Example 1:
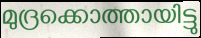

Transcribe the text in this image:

മുദ്രക്കൊത്തായിട്ടു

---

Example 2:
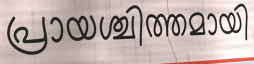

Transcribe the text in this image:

പ്രായശ്ചിത്തമായി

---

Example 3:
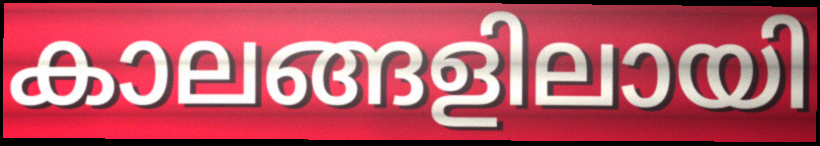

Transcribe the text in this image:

കാലങ്ങളിലായി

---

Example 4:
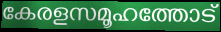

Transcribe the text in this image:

കേരളസമൂഹത്തോട്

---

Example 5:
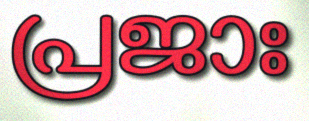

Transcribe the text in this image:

പ്രജാഃ